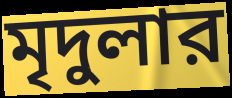
মৃদুলার